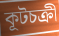
কূটচক্রী